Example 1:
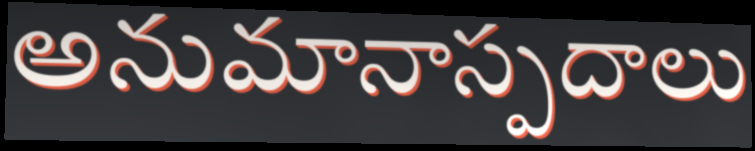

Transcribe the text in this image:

అనుమానాస్పదాలు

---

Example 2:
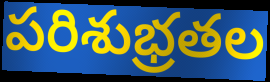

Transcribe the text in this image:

పరిశుభ్రతల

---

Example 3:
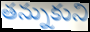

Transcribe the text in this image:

తన్నుకుని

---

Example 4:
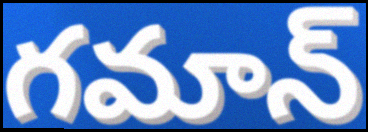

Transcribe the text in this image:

గమాన్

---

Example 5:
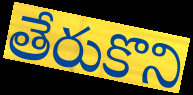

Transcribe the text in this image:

తేరుకొని